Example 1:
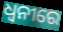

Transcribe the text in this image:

ଧ୍ଵନୀରେ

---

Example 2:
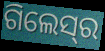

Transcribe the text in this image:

ଗିଲେସ୍‍ର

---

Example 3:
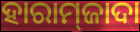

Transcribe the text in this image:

ହାରାମ୍‌ଜାଦା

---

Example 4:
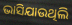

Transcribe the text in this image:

ଭାସିଯାଉଥିଲି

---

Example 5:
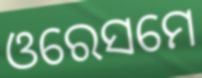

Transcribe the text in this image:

ଓରେସମେ